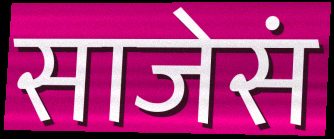
साजेसं